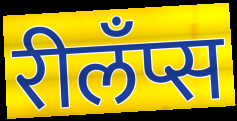
रीलँप्स